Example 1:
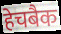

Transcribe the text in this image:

हेचबैक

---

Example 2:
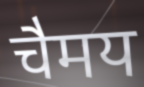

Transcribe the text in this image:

चैमय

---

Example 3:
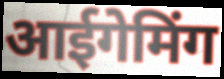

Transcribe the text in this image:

आईगेमिंग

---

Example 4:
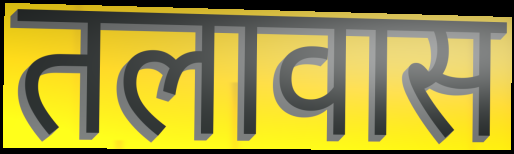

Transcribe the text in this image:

तलावास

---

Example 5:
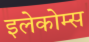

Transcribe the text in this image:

इलेकोम्स